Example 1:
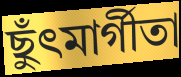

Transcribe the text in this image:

ছুঁৎমার্গীতা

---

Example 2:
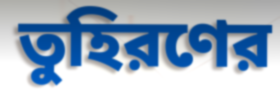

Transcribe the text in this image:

তুহিরণের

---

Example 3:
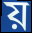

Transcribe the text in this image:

য়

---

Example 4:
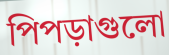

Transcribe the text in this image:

পিপড়াগুলো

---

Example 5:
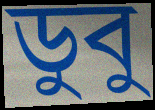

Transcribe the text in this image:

ডুবু